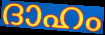
ദാഹം